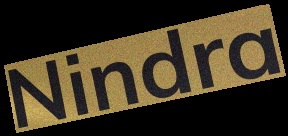
Nindra